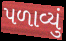
પળાવ્યું